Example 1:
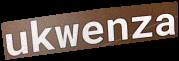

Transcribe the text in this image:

ukwenza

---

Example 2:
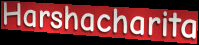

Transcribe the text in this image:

Harshacharita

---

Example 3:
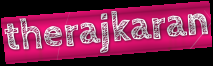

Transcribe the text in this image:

therajkaran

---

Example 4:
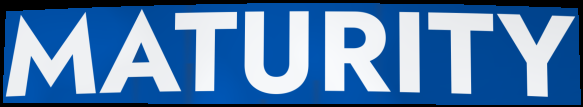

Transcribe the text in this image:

MATURITY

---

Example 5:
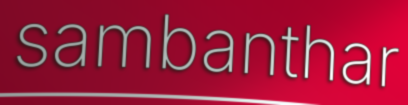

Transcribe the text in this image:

sambanthar